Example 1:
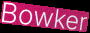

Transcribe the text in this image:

Bowker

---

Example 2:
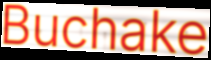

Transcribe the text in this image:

Buchake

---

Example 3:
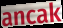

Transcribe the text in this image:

ancak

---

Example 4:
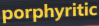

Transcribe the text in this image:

porphyritic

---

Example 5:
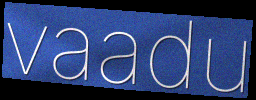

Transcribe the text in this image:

vaadu